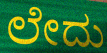
ಲೇದು